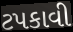
ટપકાવી